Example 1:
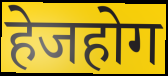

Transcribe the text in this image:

हेजहोग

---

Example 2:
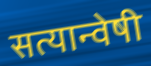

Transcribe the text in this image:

सत्यान्वेषी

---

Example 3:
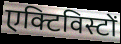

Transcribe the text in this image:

एक्टिविस्टों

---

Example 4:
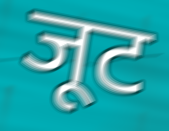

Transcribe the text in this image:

जूट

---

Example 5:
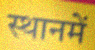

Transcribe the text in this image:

स्थानमें